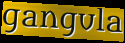
gangula